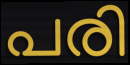
പരി